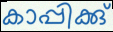
കാപ്പിക്കു്